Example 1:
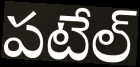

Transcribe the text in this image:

పటేల్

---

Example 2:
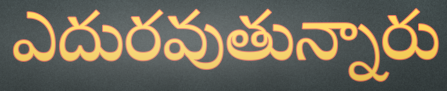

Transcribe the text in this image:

ఎదురవుతున్నారు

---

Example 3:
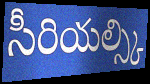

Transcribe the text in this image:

సీరియల్స్కి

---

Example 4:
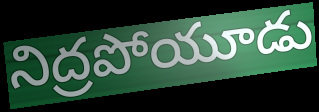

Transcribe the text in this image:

నిద్రపోయూడు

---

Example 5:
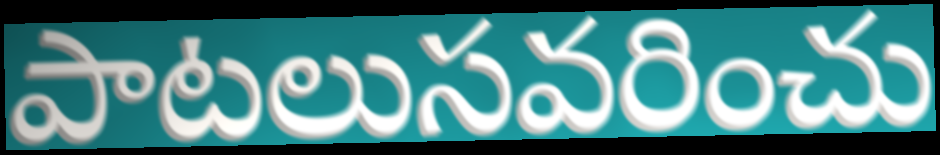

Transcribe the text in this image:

పాటలుసవరించు